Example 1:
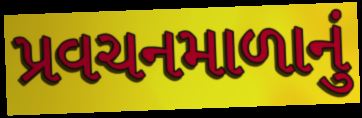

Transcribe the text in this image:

પ્રવચનમાળાનું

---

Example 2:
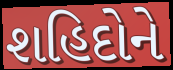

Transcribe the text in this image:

શહિદોને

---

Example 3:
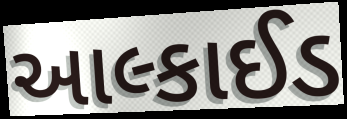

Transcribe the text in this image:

આલ્કાઈડ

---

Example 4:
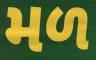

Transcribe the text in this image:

મળ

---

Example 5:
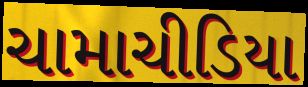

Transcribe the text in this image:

ચામાચીડિયા